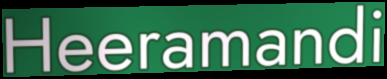
Heeramandi